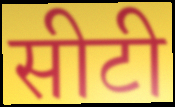
सीटी